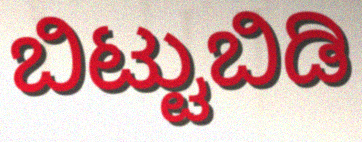
ಬಿಟ್ಟುಬಿಡಿ